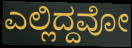
ಎಲ್ಲಿದ್ದವೋ